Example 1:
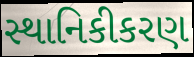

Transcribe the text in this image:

સ્થાનિકીકરણ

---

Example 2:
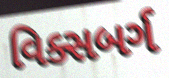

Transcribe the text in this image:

વિક્સબર્ગ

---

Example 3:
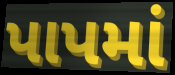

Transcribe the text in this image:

પાપમાં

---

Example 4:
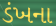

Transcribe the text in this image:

ડંખના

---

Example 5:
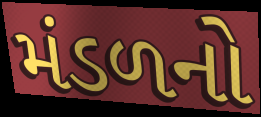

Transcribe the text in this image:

મંડળનો